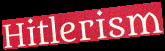
Hitlerism